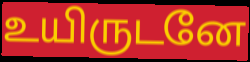
உயிருடனே